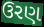
ઉરણ